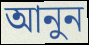
আনুন